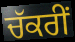
ਚੱਕਰੀਂ